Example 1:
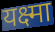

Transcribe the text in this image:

यक्ष्मा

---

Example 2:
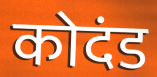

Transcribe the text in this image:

कोदंड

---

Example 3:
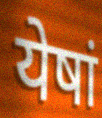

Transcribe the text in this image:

येषां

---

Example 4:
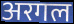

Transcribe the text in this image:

अरगल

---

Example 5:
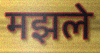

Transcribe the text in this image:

मझले